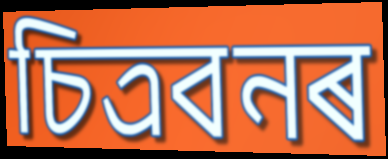
চিত্ৰবনৰ